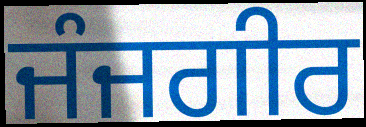
ਜੰਜਗੀਰ